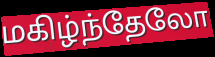
மகிழ்ந்தேலோ